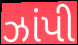
ઝાંપી